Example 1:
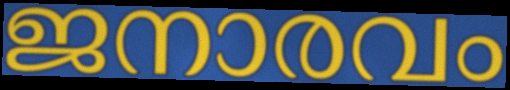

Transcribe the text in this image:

ജനാരവം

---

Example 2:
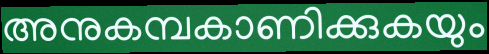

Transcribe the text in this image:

അനുകമ്പകാണിക്കുകയും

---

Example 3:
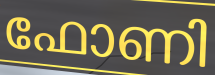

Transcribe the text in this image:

ഫോണി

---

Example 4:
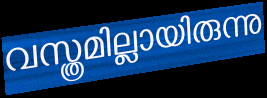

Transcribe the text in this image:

വസ്ത്രമില്ലായിരുന്നു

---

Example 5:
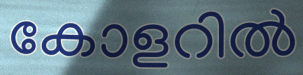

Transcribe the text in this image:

കോളറിൽ